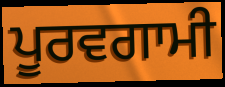
ਪੂਰਵਗਾਮੀ